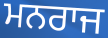
ਮਨਰਾਜ